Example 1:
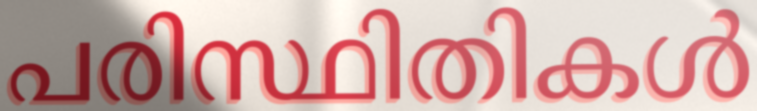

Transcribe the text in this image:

പരിസ്ഥിതികൾ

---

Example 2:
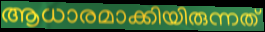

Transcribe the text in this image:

ആധാരമാക്കിയിരുന്നത്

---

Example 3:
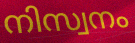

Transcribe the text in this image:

നിസ്വനം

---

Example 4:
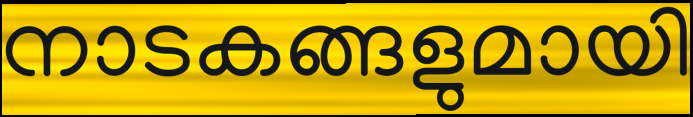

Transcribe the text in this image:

നാടകങ്ങളുമായി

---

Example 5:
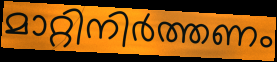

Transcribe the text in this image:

മാറ്റിനിർത്തണം